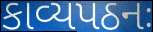
કાવ્યપઠનઃ